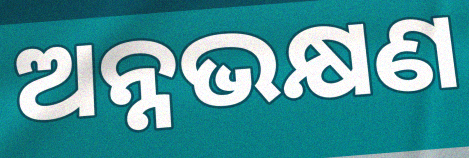
ଅନ୍ନଭକ୍ଷଣ